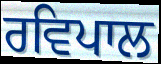
ਰਵਿਪਾਲ